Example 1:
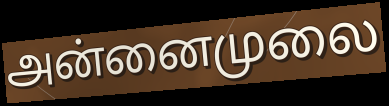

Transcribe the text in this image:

அன்னைமுலை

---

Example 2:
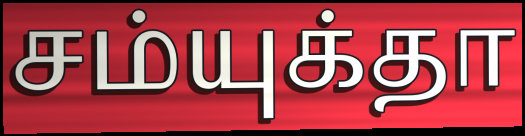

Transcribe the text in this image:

சம்யுக்தா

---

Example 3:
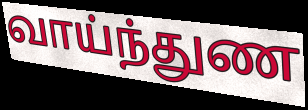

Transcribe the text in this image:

வாய்ந்துண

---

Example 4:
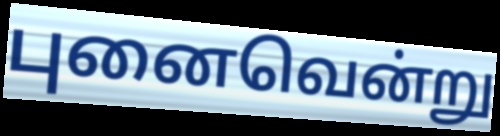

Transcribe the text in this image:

புனைவென்று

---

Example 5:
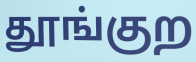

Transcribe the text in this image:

தூங்குற